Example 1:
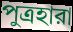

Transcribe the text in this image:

পুত্রহারা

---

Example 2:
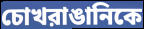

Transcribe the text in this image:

চোখরাঙানিকে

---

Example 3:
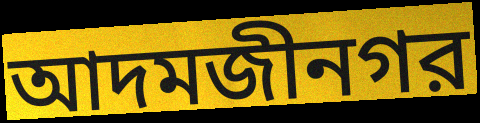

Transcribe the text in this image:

আদমজীনগর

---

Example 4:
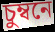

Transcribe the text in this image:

চুম্বনে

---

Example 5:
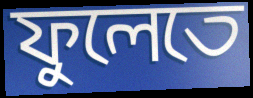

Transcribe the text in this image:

ফুলেতে